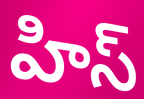
హిస్